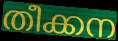
തീക്കന